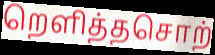
றெளித்தசொற்